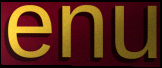
enu